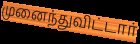
முனைந்துவிட்டார்